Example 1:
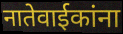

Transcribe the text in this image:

नातेवाईकांना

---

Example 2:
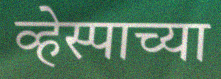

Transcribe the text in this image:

व्हेस्पाच्या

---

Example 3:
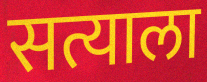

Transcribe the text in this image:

सत्याला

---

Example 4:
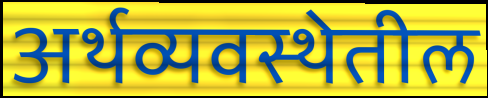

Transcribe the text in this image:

अर्थव्यवस्थेतील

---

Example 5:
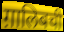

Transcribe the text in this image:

ग़ालिबची